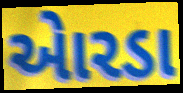
એારડા